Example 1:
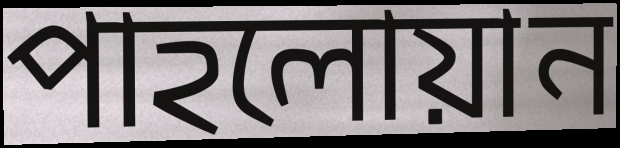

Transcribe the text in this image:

পাহলোয়ান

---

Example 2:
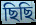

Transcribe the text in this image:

ছিছি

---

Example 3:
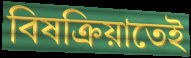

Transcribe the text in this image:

বিষক্রিয়াতেই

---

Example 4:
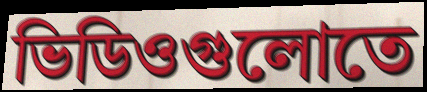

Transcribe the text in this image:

ভিডিওগুলোতে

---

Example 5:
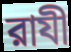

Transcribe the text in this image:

রাযী